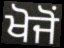
ਖੋਜੋਂ